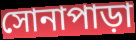
সোনাপাড়া